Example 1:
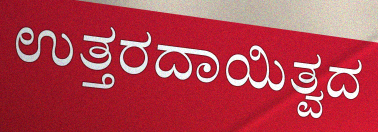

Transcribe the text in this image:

ಉತ್ತರದಾಯಿತ್ವದ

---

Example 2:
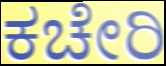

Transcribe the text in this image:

ಕಚೇರಿ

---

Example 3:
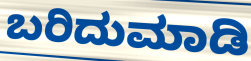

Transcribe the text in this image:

ಬರಿದುಮಾಡಿ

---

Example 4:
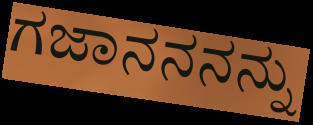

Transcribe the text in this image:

ಗಜಾನನನನ್ನು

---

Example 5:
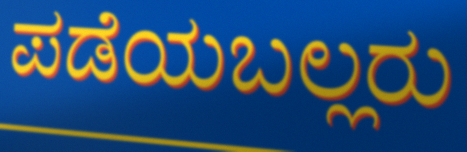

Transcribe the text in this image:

ಪಡೆಯಬಲ್ಲರು